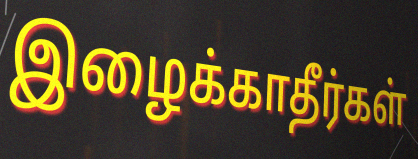
இழைக்காதீர்கள்